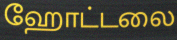
ஹோட்டலை